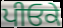
ਪੀਓਕੇ